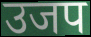
उजप